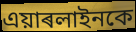
এয়াৰলাইনকে